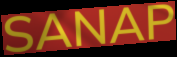
SANAP